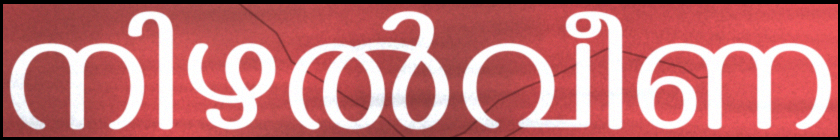
നിഴൽവീണ